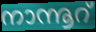
നാന്നൂറ്